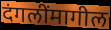
दंगलींमागील